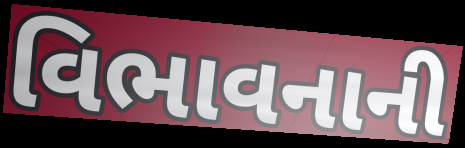
વિભાવનાની